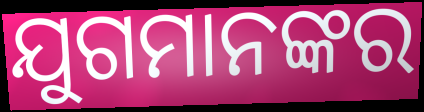
ଯୁଗମାନଙ୍କର